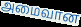
அமைவான